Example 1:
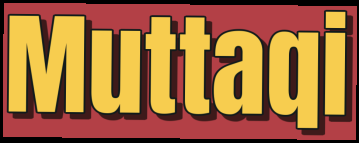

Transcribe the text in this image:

Muttaqi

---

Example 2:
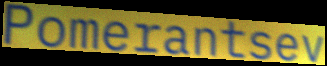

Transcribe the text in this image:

Pomerantsev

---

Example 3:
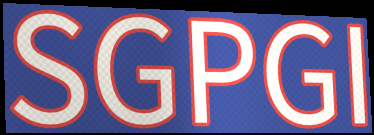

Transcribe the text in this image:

SGPGI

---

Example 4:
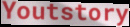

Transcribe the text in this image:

Youtstory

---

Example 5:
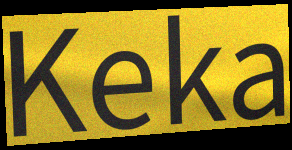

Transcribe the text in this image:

Keka